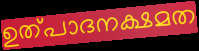
ഉത്പാദനക്ഷമത